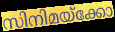
സിനിമയ്ക്കോ